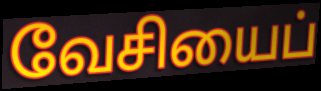
வேசியைப்